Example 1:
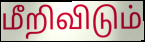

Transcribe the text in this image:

மீறிவிடும்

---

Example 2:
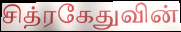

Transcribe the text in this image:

சித்ரகேதுவின்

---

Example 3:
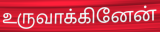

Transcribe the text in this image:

உருவாக்கினேன்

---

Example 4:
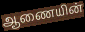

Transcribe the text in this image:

ஆணையின்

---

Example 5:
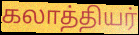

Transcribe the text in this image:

கலாத்தியர்